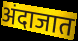
अंदाजात